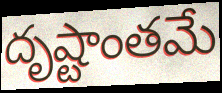
దృష్టాంతమే